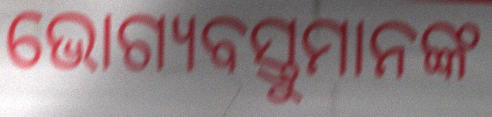
ଭୋଗ୍ୟବସ୍ତୁମାନଙ୍କ